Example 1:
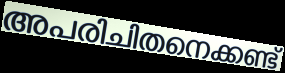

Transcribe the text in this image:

അപരിചിതനെക്കണ്ട്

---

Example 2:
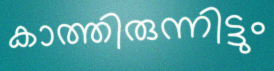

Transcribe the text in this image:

കാത്തിരുന്നിട്ടും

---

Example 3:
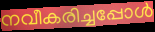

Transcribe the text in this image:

നവീകരിച്ചപ്പോൾ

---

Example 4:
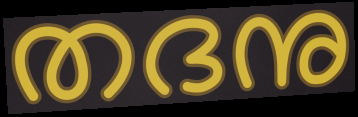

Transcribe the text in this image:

തദനു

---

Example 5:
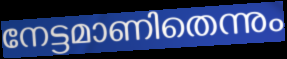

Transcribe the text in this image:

നേട്ടമാണിതെന്നും